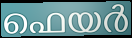
ഫെയർ